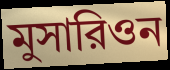
মুসারিওন